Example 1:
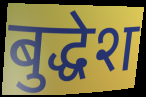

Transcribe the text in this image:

बुद्धेश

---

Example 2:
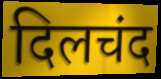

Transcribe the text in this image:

दिलचंद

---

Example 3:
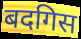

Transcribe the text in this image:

बदगिस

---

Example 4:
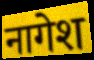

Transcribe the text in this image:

नागेश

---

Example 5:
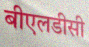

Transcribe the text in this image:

बीएलडीसी